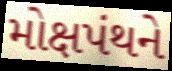
મોક્ષપંથને